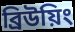
ব্রিউয়িং